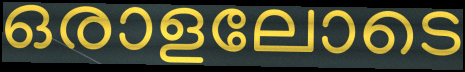
ഒരാളലോടെ